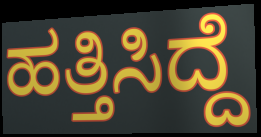
ಹತ್ತಿಸಿದ್ದೆ